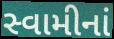
સ્વામીનાં